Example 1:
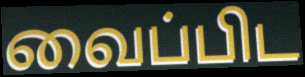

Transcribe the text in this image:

வைப்பிட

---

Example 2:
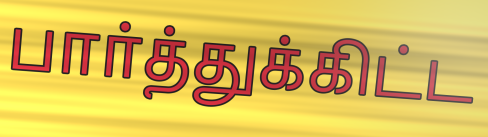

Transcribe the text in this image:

பார்த்துக்கிட்ட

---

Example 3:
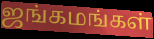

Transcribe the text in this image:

ஜங்கமங்கள்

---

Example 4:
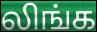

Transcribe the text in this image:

லிங்க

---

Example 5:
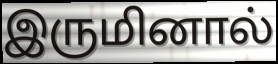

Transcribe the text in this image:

இருமினால்